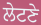
ਲੇਟਣੇ